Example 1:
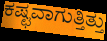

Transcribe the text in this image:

ಕಷ್ಟವಾಗುತ್ತಿತ್ತು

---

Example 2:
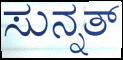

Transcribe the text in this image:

ಸುನ್ನತ್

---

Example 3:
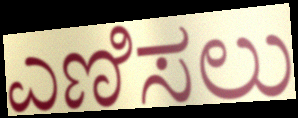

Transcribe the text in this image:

ಎಣಿಸಲು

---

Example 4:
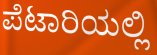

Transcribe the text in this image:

ಪೆಟಾರಿಯಲ್ಲಿ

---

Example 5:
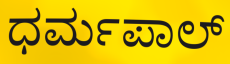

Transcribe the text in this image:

ಧರ್ಮಪಾಲ್